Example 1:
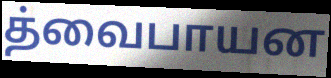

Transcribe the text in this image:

த்வைபாயன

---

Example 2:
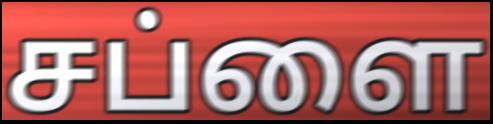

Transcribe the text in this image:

சப்ளை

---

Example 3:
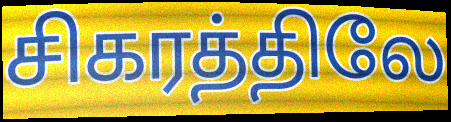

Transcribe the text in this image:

சிகரத்திலே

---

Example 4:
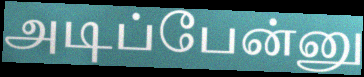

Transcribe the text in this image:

அடிப்பேன்னு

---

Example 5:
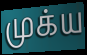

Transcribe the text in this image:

முக்ய